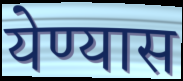
येण्यास